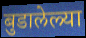
बुडालेल्या